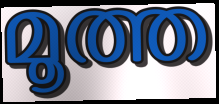
മൂത്ത